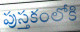
పుస్తకంలోకి